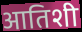
आतिशी